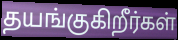
தயங்குகிறீர்கள்